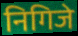
निगिजे